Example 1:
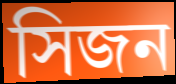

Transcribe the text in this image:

সিজন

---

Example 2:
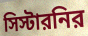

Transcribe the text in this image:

সিস্টারনির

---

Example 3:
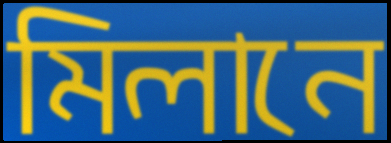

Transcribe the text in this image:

মিলানে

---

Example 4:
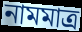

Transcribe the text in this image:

নামমাত্র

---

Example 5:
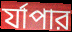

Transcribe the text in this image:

র্যাপার